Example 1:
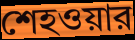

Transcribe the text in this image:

শেহওয়ার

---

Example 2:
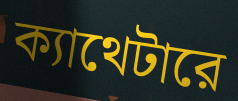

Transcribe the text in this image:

ক্যাথেটারে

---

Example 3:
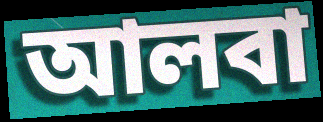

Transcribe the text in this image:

আলবা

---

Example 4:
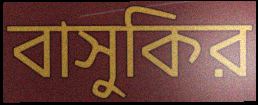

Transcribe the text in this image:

বাসুকির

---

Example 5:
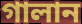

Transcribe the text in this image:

গালান